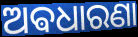
ଅଵଧାରଣା